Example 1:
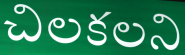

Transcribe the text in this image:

చిలకలని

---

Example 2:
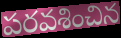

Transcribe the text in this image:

పరవశించిన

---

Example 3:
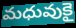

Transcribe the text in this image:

మధువుకై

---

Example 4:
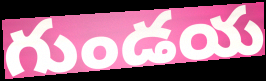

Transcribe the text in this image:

గుండయ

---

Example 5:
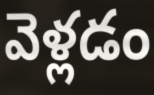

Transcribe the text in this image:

వెళ్లడం